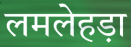
लमलेहड़ा